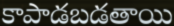
కాపాడబడతాయి